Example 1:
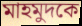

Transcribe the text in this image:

মাহমুদকে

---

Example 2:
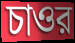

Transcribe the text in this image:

চাওর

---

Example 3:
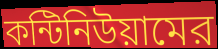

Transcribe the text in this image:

কন্টিনিউয়ামের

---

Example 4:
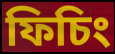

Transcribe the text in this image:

ফিচিং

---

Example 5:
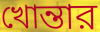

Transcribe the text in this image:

খোন্তার